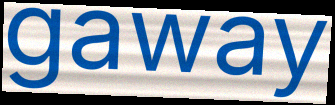
gaway